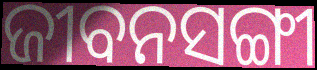
ଜୀବନସଙ୍ଗୀ